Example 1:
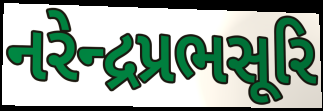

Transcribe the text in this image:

નરેન્દ્રપ્રભસૂરિ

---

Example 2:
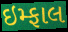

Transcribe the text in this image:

ઇમ્ફાલ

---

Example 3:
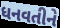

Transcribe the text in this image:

ધનવતીને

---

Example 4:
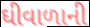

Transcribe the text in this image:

ઘીવાળાની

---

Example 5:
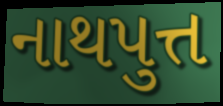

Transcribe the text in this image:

નાથપુત્ત